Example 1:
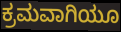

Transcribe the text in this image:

ಕ್ರಮವಾಗಿಯೂ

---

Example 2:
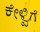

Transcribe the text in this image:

ಕೇಳ್ವಿಗೆ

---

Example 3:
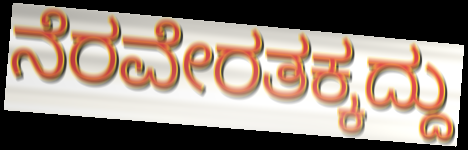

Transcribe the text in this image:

ನೆರವೇರತಕ್ಕದ್ದು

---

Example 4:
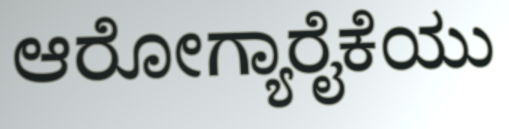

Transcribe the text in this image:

ಆರೋಗ್ಯಾರೈಕೆಯು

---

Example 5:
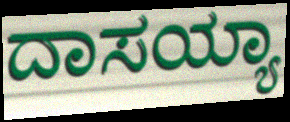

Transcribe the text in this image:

ದಾಸಯ್ಯಾ